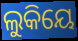
ଲୁକିୟେ